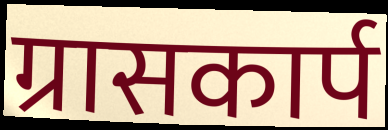
ग्रासकार्प